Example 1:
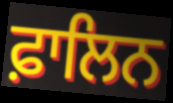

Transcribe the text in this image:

ਫ਼ਾਲਿਨ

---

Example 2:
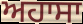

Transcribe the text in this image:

ਅਹਾਸਾ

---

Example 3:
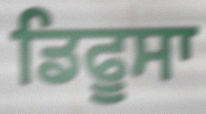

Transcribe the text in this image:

ਡਿਫੂਸਾ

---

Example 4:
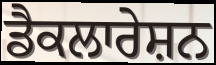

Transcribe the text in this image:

ਡੈਕਲਾਰੇਸ਼ਨ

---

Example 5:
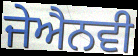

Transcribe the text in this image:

ਜੇਐਨਵੀ